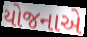
યોજનાએ